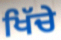
ਖਿੱਚੇ